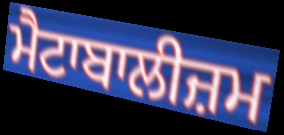
ਮੈਟਾਬਾਲੀਜ਼ਮ